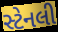
સ્ટેનલી